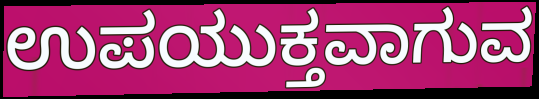
ಉಪಯುಕ್ತವಾಗುವ